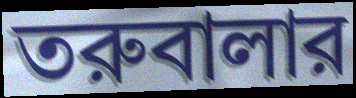
তরুবালার